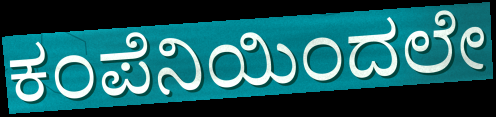
ಕಂಪೆನಿಯಿಂದಲೇ